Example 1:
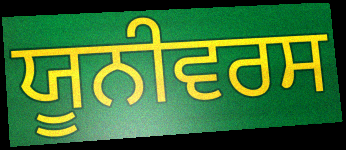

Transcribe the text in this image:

ਯੂਨੀਵਰਸ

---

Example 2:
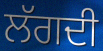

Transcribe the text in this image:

ਲੱਗਦੀ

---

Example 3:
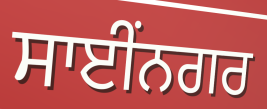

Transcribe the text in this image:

ਸਾਈਂਨਗਰ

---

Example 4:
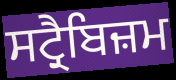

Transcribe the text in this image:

ਸਟ੍ਰੈਬਿਜ਼ਮ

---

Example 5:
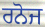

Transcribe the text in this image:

ਰਨੋਜ